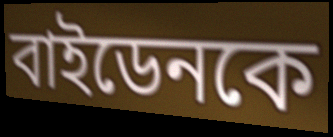
বাইডেনকে